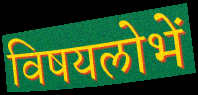
विषयलोभें